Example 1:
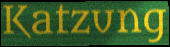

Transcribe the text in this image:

Katzung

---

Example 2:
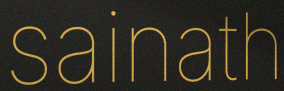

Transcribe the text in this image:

sainath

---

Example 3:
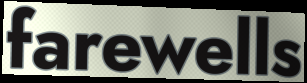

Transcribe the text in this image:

farewells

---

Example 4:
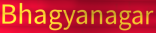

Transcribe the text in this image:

Bhagyanagar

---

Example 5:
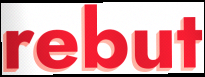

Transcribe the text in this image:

rebut